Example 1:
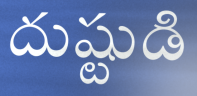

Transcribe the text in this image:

దుష్టుడి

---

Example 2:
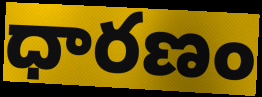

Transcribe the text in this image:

ధారణం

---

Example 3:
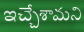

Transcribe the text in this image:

ఇచ్చేశామని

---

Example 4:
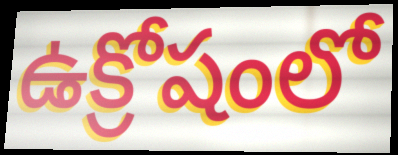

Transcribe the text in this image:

ఉక్రోషంలో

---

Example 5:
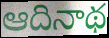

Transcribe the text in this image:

ఆదినాథ